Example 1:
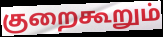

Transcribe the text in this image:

குறைகூறும்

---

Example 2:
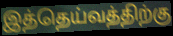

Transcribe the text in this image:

இத்தெய்வத்திற்கு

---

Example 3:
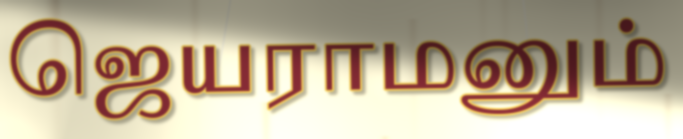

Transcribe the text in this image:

ஜெயராமனும்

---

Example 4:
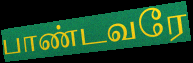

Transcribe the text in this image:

பாண்டவரே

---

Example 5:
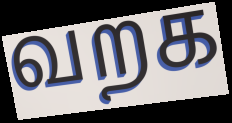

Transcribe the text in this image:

வறக